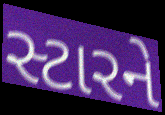
સ્ટારને